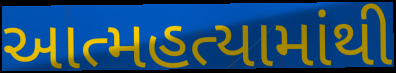
આત્મહત્યામાંથી